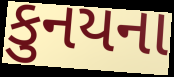
કુનયના